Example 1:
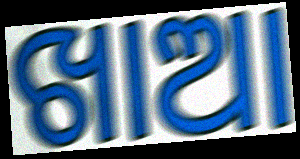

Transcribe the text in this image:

ଖାଆ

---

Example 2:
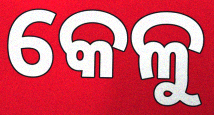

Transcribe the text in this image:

କେଳୁ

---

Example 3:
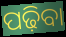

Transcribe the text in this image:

ପଢ଼ିବା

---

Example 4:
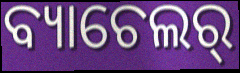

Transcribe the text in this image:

ବ୍ୟାଚେଲର୍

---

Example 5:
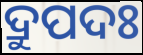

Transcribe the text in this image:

ଦ୍ରୁପଦଃ